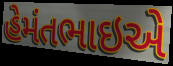
હેમંતભાઇએ